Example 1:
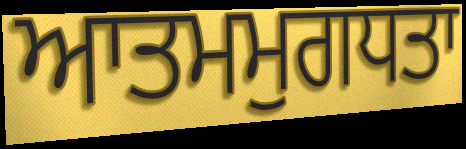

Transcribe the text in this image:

ਆਤਮਮੁਗਧਤਾ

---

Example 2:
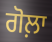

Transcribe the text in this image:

ਗੋਲ਼ਾ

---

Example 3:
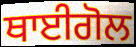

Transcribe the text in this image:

ਥਾਈਗੋਲ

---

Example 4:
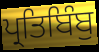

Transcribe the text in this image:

ਪ੍ਰਤਿਬਿੰਬੁ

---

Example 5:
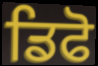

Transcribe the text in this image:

ਡਿਫੋ